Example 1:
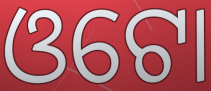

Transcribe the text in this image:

ଓଟୋ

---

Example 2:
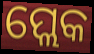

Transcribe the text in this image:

ପ୍ଲେକ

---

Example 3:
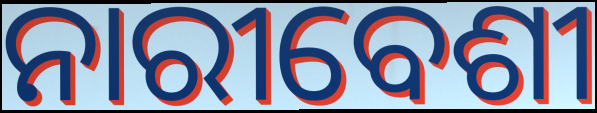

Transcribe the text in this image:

ନାରୀବେଶୀ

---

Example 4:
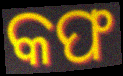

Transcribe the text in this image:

କଫ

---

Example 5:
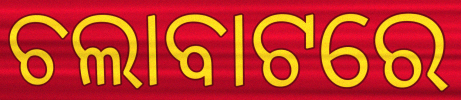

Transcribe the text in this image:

ଚଲାବାଟରେ